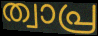
ത്വാപ്ര